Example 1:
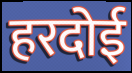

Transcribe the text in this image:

हरदोई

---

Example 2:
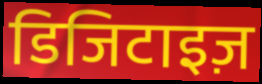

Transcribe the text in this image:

डिजिटाइज़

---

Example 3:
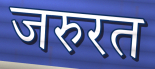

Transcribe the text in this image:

जरुरत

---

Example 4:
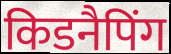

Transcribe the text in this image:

किडनैपिंग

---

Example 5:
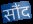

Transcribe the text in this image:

सौंद